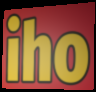
iho